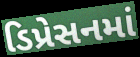
ડિપ્રેસનમાં